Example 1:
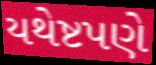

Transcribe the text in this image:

યથેષ્ટપણે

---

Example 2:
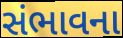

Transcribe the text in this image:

સંભાવના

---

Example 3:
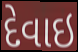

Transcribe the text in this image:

દેવાઇ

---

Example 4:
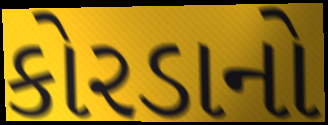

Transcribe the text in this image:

કોરડાનો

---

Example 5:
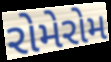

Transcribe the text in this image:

રોમેરોમ